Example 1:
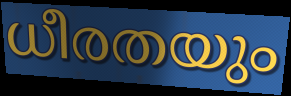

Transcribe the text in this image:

ധീരതയും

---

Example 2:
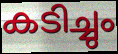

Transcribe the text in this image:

കടിച്ചും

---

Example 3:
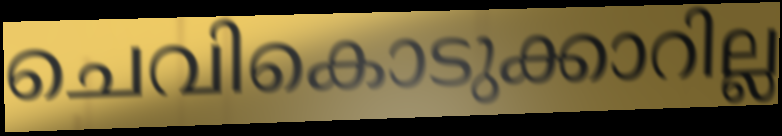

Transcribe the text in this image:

ചെവികൊടുക്കാറില്ല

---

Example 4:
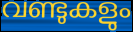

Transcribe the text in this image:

വണ്ടുകളും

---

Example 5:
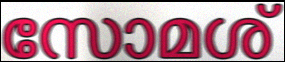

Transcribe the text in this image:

സോമശ്